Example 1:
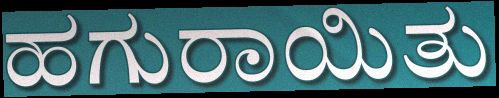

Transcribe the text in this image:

ಹಗುರಾಯಿತು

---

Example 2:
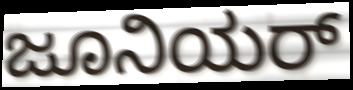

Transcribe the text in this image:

ಜೂನಿಯರ್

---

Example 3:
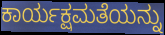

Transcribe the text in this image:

ಕಾರ್ಯಕ್ಷಮತೆಯನ್ನು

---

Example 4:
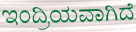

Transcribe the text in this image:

ಇಂದ್ರಿಯವಾಗಿದೆ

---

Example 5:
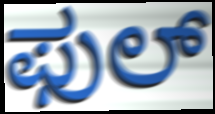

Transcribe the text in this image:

ಫುಲ್